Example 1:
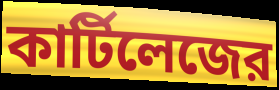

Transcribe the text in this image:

কার্টিলেজের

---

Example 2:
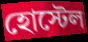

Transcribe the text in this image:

হোস্টেল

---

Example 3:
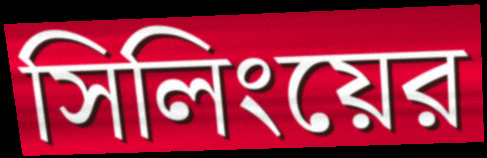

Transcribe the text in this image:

সিলিংয়ের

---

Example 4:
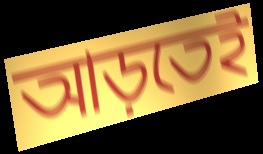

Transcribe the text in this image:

আড়তেই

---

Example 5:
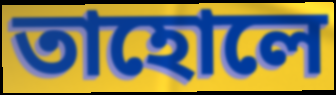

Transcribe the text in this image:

তাহোলে